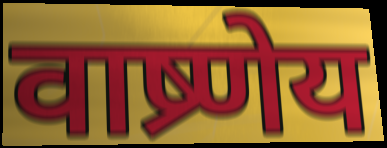
वाष्र्णेय